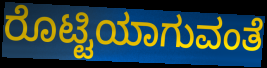
ರೊಟ್ಟಿಯಾಗುವಂತೆ